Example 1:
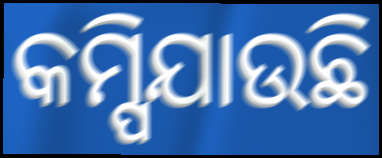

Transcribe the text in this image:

କମ୍ପିଯାଉଛି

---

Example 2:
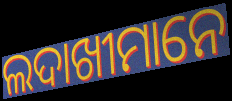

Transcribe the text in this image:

ଲଦାଖୀମାନେ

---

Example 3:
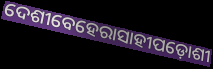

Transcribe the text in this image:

ଦେଶୀବେହେରାସାହୀପଡ଼ୋଶୀ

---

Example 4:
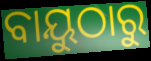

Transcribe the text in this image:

ବାୟୁଠାରୁ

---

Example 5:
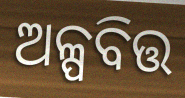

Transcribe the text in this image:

ଅଳ୍ପବିତ୍ତ